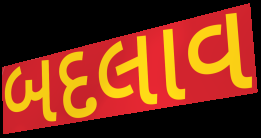
બદલાવ